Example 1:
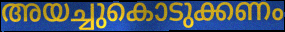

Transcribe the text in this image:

അയച്ചുകൊടുക്കണം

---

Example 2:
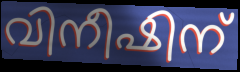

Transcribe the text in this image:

വിനീഷിന്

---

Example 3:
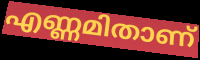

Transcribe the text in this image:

എണ്ണമിതാണ്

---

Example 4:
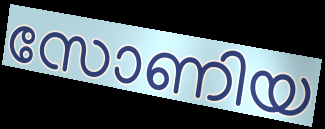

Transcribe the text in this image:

സോണിയ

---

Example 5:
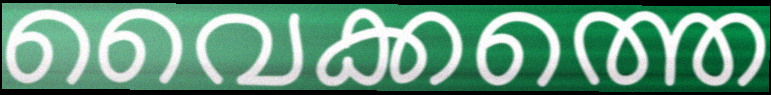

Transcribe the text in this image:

വൈക്കത്തെ